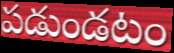
పడుండటం